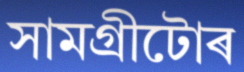
সামগ্ৰীটোৰ